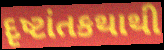
દૃષ્ટાંતકથાથી